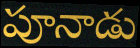
పూనాడు